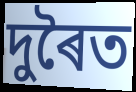
দুৰৈত